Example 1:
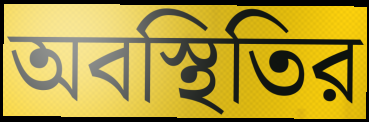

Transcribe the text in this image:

অবস্থিতির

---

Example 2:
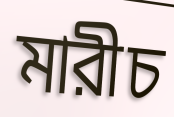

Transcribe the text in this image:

মারীচ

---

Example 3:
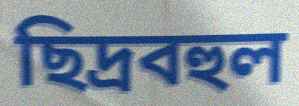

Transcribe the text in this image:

ছিদ্রবহুল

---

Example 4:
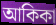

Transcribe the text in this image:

আকিকা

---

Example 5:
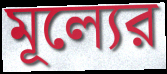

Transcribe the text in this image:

মূল্যের